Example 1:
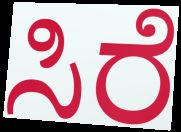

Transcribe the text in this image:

ಸಿರೆ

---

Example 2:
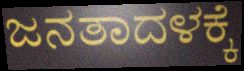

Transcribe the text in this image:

ಜನತಾದಳಕ್ಕೆ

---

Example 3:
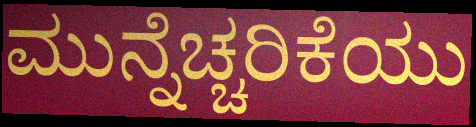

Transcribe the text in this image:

ಮುನ್ನೆಚ್ಚರಿಕೆಯು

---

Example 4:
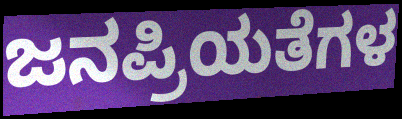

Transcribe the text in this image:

ಜನಪ್ರಿಯತೆಗಳ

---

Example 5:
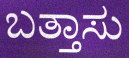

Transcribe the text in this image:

ಬತ್ತಾಸು